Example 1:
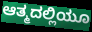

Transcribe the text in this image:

ಆತ್ಮದಲ್ಲಿಯೂ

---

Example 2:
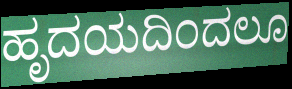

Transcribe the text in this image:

ಹೃದಯದಿಂದಲೂ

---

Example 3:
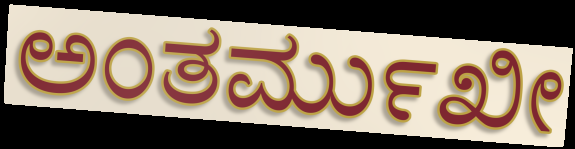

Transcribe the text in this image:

ಅಂತರ್ಮುಖೀ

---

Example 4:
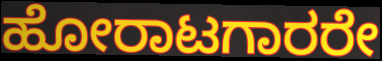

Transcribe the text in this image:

ಹೋರಾಟಗಾರರೇ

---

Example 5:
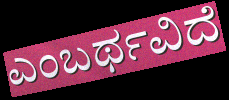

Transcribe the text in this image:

ಎಂಬರ್ಥವಿದೆ